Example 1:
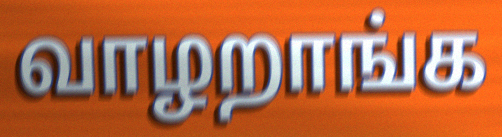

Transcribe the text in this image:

வாழறாங்க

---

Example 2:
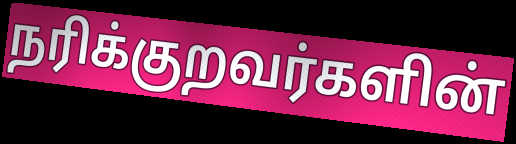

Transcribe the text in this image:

நரிக்குறவர்களின்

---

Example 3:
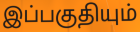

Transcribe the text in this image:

இப்பகுதியும்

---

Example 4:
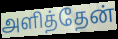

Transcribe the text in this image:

அளித்தேன்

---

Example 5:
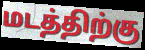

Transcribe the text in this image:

மடத்திற்கு